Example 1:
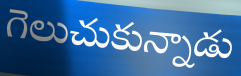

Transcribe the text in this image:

గెలుచుకున్నాడు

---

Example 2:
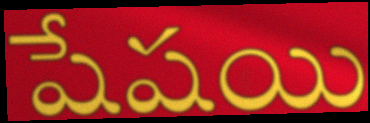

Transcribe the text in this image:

షేషయి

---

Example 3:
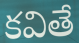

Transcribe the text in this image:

కవితే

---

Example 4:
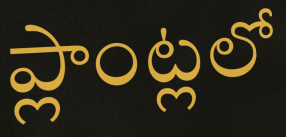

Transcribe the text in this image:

ప్లాంట్లలో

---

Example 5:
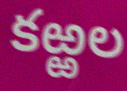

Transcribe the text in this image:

కఱ్ఱల